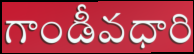
గాండీవధారి